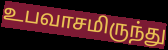
உபவாசமிருந்து